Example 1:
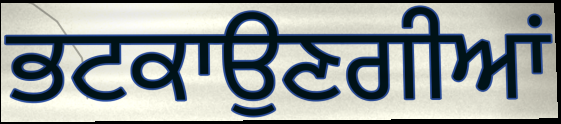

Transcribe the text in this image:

ਭਟਕਾਉਣਗੀਆਂ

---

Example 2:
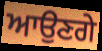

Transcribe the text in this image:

ਆਉਣਗੇ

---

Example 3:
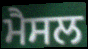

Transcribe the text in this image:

ਮੈਸਲ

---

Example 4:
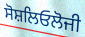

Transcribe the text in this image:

ਸੋਸ਼ਲਿਓਲੋਜੀ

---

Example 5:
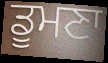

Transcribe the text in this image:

ਡੂਮਣਾ